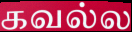
கவல்ல